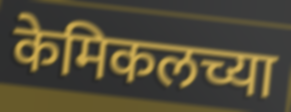
केमिकलच्या